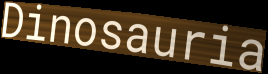
Dinosauria